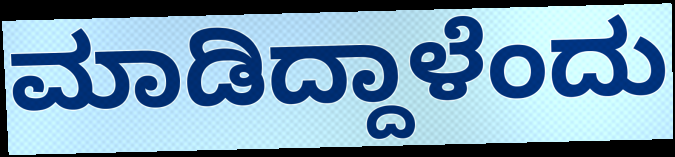
ಮಾಡಿದ್ದಾಳೆಂದು